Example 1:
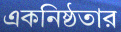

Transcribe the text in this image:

একনিষ্ঠতার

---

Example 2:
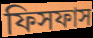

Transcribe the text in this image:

ফিসফাস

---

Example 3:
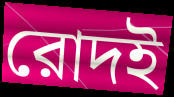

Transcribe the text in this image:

রোদই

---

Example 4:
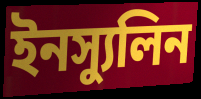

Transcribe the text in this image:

ইনস্যুলিন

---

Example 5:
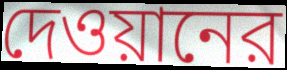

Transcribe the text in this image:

দেওয়ানের